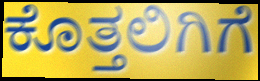
ಕೊತ್ತಲಿಗಿಗೆ